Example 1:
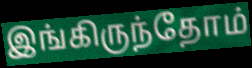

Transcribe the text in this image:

இங்கிருந்தோம்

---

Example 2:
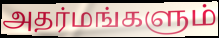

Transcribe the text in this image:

அதர்மங்களும்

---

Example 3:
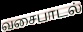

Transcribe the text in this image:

வசைபாடல்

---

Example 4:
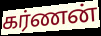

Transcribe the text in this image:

கர்ணன்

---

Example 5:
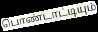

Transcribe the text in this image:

பொண்டாட்டியும்